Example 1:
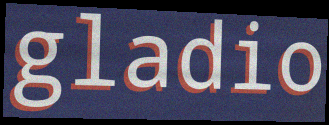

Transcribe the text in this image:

gladio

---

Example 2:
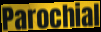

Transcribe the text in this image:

Parochial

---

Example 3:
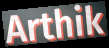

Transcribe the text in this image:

Arthik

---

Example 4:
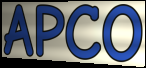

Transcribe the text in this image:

APCO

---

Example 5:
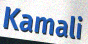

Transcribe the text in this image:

Kamali